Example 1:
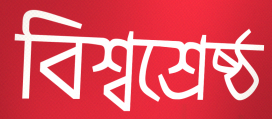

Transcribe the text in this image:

বিশ্বশ্ৰেষ্ঠ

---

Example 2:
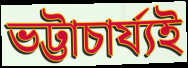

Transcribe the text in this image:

ভট্টাচাৰ্য্যই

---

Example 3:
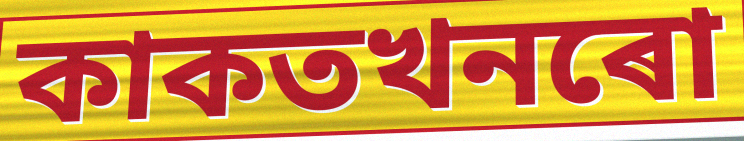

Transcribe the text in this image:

কাকতখনৰো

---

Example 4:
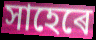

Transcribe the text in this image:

সাহেৰে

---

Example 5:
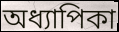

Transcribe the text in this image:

অধ্যাপিকা